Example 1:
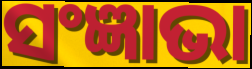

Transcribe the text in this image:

ସଂଜ୍ଞାଭା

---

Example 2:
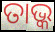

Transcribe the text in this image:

ତାଭ୍କ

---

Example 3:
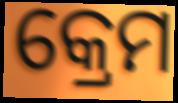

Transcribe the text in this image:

କ୍ରେମ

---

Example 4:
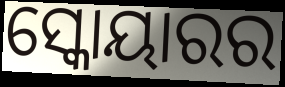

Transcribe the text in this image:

ସ୍କୋୟାରର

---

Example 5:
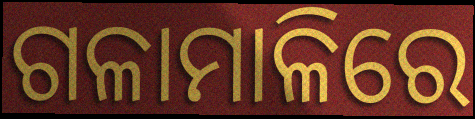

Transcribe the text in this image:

ଗଳାମାଳିରେ